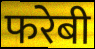
फरेबी